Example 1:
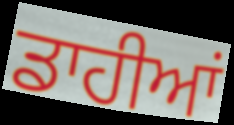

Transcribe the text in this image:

ਡਾਹੀਆਂ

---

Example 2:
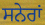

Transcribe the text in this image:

ਸਨੇਰਾਂ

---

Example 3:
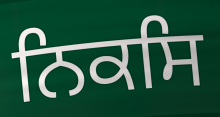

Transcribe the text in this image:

ਨਿਕਸਿ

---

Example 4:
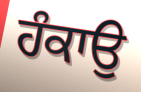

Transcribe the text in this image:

ਹੰਕਾਉ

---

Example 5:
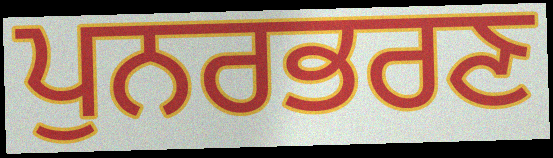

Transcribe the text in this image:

ਪੁਨਰਭਰਣ